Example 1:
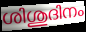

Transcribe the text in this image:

ശിശുദിനം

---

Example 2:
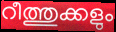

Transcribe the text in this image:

റീത്തുക്കളും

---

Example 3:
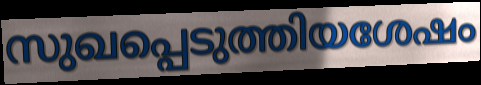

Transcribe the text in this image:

സുഖപ്പെടുത്തിയശേഷം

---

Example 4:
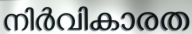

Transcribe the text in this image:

നിർവികാരത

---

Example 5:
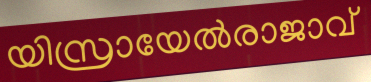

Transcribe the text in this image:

യിസ്രായേൽരാജാവ്